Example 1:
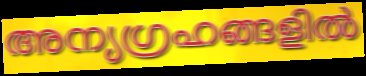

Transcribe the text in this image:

അന്യഗ്രഹങ്ങളിൽ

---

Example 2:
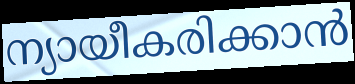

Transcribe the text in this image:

ന്യായീകരിക്കാൻ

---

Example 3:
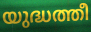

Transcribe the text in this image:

യുദ്ധത്തീ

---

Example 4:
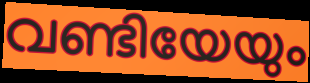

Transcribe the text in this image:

വണ്ടിയേയും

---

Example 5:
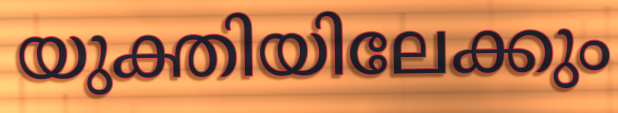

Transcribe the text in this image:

യുക്തിയിലേക്കും